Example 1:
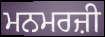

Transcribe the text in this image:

ਮਨਮਰਜ਼ੀ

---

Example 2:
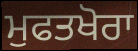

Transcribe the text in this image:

ਮੁਫਤਖੋਰਾ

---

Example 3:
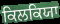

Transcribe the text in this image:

ਕਿਲਕਿਯਾ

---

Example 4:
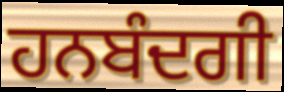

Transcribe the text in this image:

ਹਨਬੰਦਗੀ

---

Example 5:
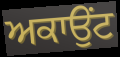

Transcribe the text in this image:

ਅਕਾਉਂਟ